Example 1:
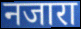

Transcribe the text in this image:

नजारा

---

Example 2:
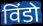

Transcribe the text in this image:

विंडो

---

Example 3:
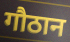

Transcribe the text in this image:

गौठान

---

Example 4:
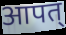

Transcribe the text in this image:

आपत्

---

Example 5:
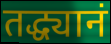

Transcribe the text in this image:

तद्ध्यानं